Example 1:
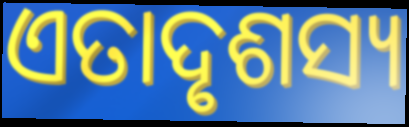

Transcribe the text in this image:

ଏତାଦୃଶସ୍ୟ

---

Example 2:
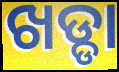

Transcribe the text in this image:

ଖଡ୍ଡା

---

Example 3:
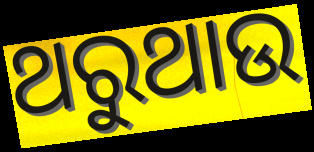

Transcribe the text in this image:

ଥରୁଥାଉ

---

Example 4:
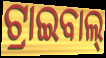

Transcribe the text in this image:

ଟ୍ରାଇବାଲ୍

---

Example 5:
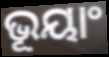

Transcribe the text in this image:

ଭୂୟାଂ